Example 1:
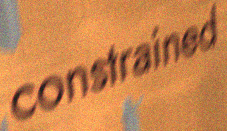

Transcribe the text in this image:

constrained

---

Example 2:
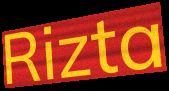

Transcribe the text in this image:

Rizta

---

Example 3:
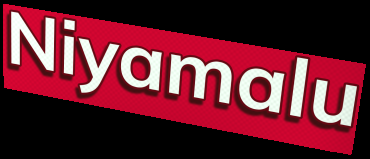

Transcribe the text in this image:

Niyamalu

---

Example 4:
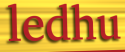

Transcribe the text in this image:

ledhu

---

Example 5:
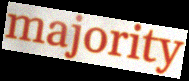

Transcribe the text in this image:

majority